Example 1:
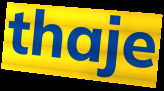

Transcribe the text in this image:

thaje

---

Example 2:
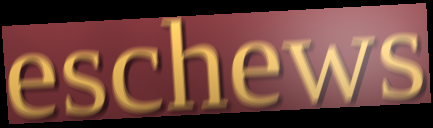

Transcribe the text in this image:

eschews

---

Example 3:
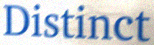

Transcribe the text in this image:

Distinct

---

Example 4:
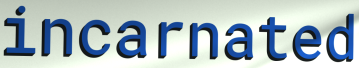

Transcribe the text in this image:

incarnated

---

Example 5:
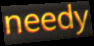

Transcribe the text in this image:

needy